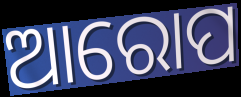
ଆରୋପ